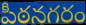
పీఠనగరం